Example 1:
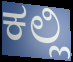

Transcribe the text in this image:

ಕಲ್ಲಿ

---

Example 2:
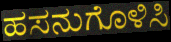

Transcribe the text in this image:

ಹಸನುಗೊಳಿಸಿ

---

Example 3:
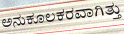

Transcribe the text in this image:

ಅನುಕೂಲಕರವಾಗಿತ್ತು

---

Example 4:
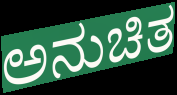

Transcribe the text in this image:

ಅನುಚಿತ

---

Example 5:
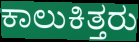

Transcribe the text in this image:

ಕಾಲುಕಿತ್ತರು